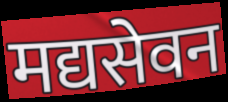
मद्यसेवन